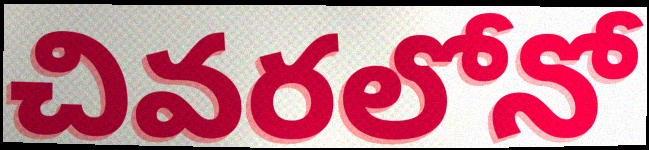
చివరలోనో